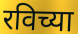
रविच्या